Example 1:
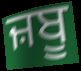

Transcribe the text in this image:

ਜ਼ਬੂ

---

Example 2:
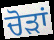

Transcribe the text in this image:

ਚੋੜਾਂ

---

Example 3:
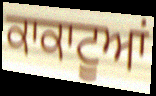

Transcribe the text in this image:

ਕਾਕਾਟੂਆਂ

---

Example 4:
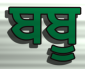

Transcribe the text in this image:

ਬਬੂ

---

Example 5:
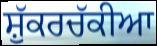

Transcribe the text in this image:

ਸ਼ੁੱਕਰਚੱਕੀਆ